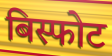
बिस्फोट